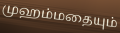
முஹம்மதையும்